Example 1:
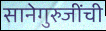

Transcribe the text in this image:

सानेगुरुजींची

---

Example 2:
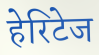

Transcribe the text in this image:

हेरिटेज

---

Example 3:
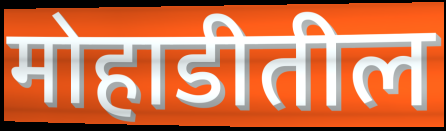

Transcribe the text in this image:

मोहाडीतील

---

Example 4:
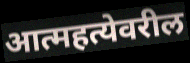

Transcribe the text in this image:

आत्महत्येवरील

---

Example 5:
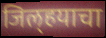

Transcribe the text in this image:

जिल्हयाचा